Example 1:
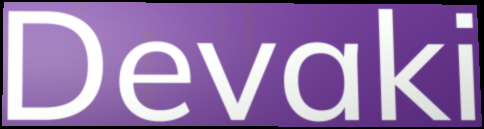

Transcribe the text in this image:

Devaki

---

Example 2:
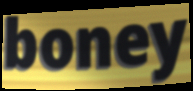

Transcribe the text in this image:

boney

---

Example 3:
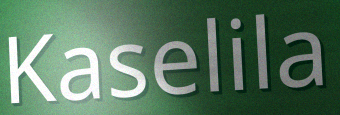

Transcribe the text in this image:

Kaselila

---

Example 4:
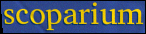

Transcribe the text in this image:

scoparium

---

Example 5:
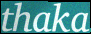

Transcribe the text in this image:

thaka